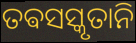
ତଵସସ୍କୃତାନି